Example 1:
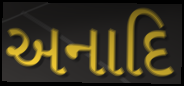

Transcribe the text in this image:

અનાદિ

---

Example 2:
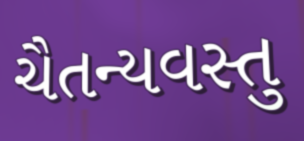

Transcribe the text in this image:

ચૈતન્યવસ્તુ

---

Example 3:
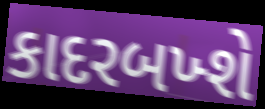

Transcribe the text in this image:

કાદરબખ્શે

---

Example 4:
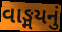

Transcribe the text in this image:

વાઙ્મયનું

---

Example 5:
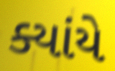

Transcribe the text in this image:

ક્યાંયે